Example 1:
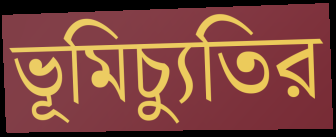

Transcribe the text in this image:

ভূমিচ্যুতির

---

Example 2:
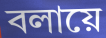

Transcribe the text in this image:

বলায়ে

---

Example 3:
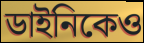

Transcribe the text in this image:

ডাইনিকেও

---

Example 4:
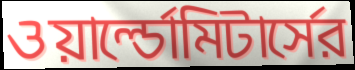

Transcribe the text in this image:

ওয়ার্ল্ডোমিটার্সের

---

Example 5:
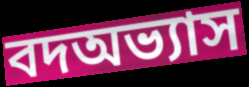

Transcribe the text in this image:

বদঅভ্যাস